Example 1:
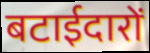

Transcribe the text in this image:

बटाईदारों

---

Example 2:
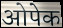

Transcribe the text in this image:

ओपेक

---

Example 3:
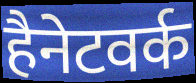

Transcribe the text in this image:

हैनेटवर्क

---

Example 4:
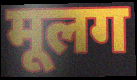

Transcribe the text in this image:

मूलग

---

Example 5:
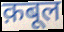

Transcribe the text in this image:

क़बूल